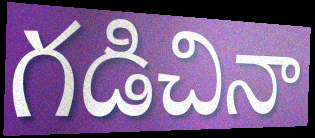
గడిచినా